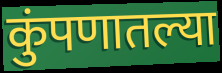
कुंपणातल्या